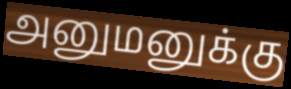
அனுமனுக்கு